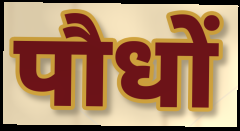
पौधों